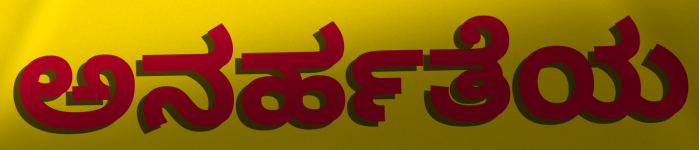
ಅನರ್ಹತೆಯ